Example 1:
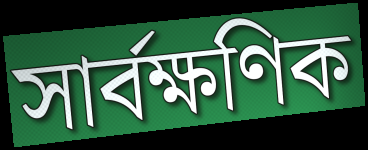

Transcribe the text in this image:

সার্বক্ষণিক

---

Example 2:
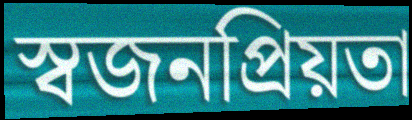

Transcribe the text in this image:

স্বজনপ্রিয়তা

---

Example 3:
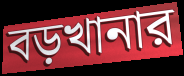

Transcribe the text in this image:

বড়খানার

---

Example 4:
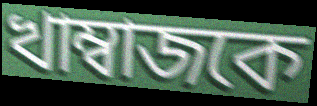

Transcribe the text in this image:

খাম্বাজকে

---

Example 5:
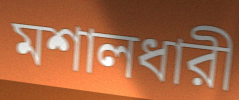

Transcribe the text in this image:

মশালধারী